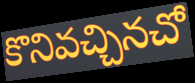
కొనివచ్చినచో